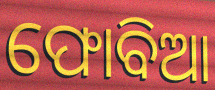
ଫୋବିଆ